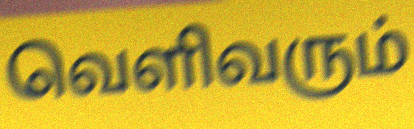
வெளிவரும்